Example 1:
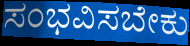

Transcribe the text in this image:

ಸಂಭವಿಸಬೇಕು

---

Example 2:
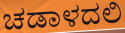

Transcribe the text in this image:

ಚಡಾಳದಲಿ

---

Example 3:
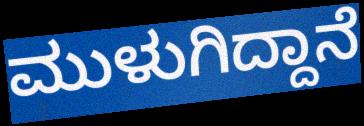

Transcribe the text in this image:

ಮುಳುಗಿದ್ದಾನೆ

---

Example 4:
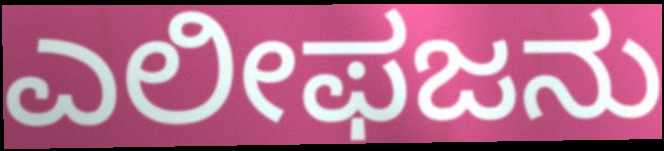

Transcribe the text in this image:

ಎಲೀಫಜನು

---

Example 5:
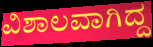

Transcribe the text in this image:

ವಿಶಾಲವಾಗಿದ್ದ